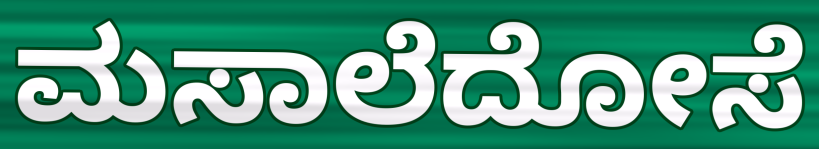
ಮಸಾಲೆದೋಸೆ